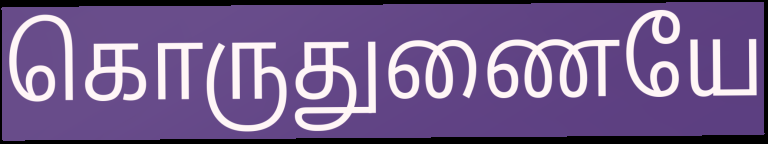
கொருதுணையே